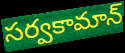
సర్వకామాన్